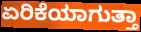
ಏರಿಕೆಯಾಗುತ್ತಾ